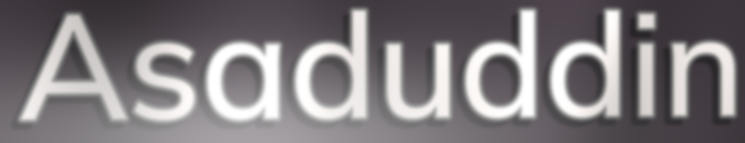
Asaduddin